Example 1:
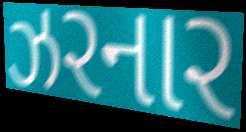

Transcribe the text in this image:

ઝરનાર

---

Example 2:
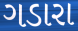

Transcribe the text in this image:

ગડારા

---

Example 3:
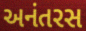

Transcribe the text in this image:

અનંતરસ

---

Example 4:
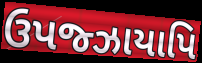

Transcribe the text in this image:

ઉપજ્ઝાયાપિ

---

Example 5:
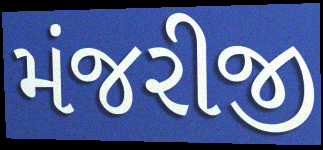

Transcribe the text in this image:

મંજરીજી